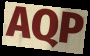
AQP